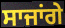
ਸਾਜਾਂਗੇ